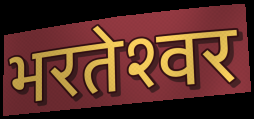
भरतेश्वर